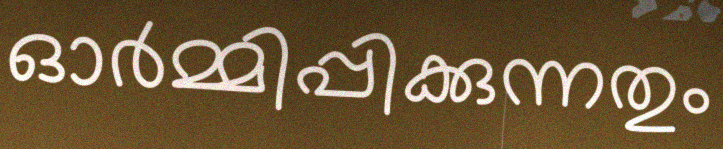
ഓർമ്മിപ്പിക്കുന്നതും